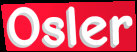
Osler